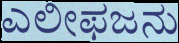
ಎಲೀಫಜನು